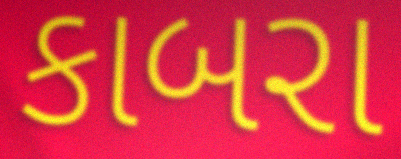
કાબરા